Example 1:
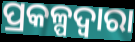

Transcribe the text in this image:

ପ୍ରକଳ୍ପଦ୍ୱାରା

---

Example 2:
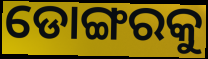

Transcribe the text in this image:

ଡୋଙ୍ଗରକୁ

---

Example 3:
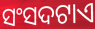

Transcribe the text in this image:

ସଂସଦଟାଏ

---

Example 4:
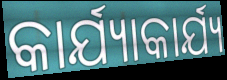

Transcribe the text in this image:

କାର୍ଯ୍ୟାକାର୍ଯ୍ୟ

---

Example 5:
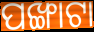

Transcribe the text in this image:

ପଙ୍ଖାଟା